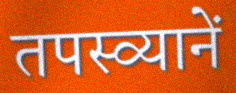
तपस्व्यानें